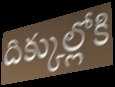
దిక్కుల్లోకి